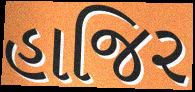
હાજિર